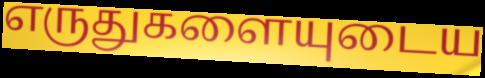
எருதுகளையுடைய